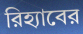
রিহ্যাবের